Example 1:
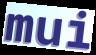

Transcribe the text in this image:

mui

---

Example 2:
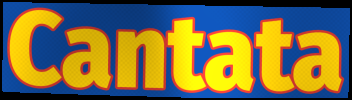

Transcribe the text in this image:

Cantata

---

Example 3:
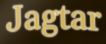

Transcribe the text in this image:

Jagtar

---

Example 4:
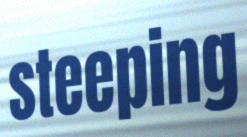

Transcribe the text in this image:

steeping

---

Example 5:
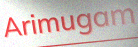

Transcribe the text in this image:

Arimugam